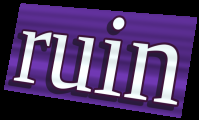
ruin